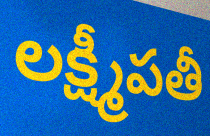
లక్ష్మీపతీ